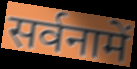
सर्वनामें